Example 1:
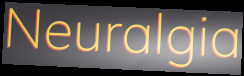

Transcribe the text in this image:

Neuralgia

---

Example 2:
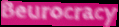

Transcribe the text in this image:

Beurocracy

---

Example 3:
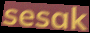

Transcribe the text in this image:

sesak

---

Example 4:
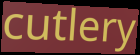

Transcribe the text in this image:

cutlery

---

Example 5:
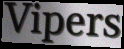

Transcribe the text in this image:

Vipers